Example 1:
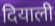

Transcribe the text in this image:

दियाली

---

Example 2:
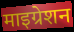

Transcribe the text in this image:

माइग्रेशन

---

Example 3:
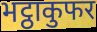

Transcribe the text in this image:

भट्ठाकुफर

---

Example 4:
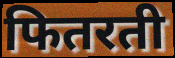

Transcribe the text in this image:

फितरती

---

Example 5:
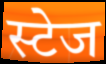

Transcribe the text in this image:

स्‍टेज